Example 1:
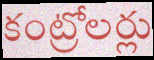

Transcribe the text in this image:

కంట్రోలర్లు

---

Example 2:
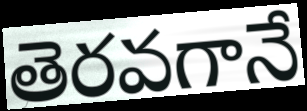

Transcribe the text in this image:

తెరవగానే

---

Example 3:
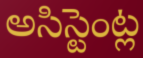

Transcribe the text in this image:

అసిస్టెంట్ల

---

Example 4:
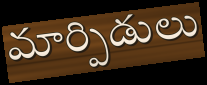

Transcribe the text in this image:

మార్పిడులు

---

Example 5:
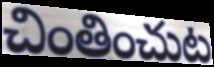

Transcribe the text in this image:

చింతించుట